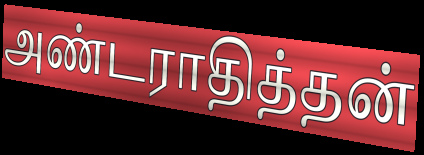
அண்டராதித்தன்